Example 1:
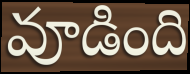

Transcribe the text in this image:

వూడింది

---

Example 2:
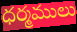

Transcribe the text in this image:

ధర్మములు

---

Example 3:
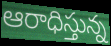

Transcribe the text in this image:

ఆరాధిస్తున్న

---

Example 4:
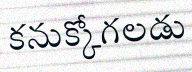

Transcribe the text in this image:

కనుక్కోగలడు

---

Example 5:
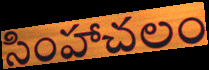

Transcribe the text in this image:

సింహాచలం